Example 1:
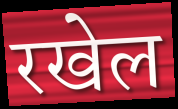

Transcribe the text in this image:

रखेल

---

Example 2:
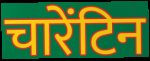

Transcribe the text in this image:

चारेंटिन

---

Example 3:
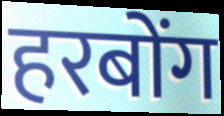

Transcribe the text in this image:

हरबोंग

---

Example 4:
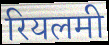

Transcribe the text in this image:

रियलमी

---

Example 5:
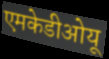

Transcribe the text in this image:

एमकेडीओयू